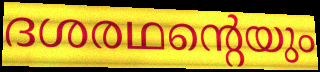
ദശരഥന്റെയും